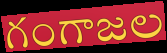
గంగాజల